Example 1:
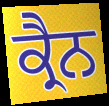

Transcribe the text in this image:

ਕ੍ਰੈਨ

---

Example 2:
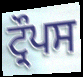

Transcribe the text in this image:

ਟ੍ਰੌਪਸ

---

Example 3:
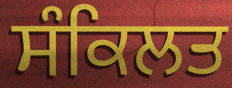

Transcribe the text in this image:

ਸੰਕਿਲਤ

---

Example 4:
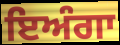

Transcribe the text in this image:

ਇਅੰਗਾ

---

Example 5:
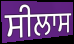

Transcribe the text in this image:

ਸੀਲਾਸ